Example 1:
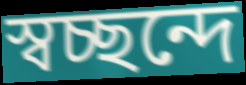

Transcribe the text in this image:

স্বচ্ছন্দে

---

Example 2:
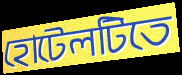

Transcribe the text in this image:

হোটেলটিতে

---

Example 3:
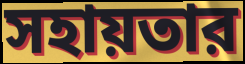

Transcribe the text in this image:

সহায়তার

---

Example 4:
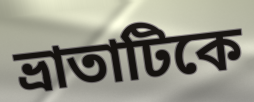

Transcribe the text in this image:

ভ্রাতাটিকে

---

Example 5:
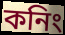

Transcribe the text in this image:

কনিং